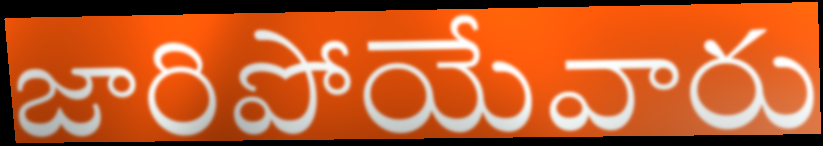
జారిపోయేవారు